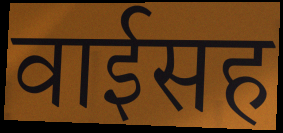
वाईसह